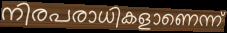
നിരപരാധികളാണെന്ന്